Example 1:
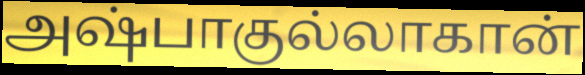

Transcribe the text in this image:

அஷ்பாகுல்லாகான்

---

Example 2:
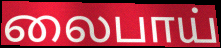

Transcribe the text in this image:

லைபாய்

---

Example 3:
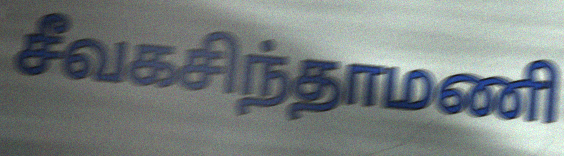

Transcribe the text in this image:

சீவகசிந்தாமணி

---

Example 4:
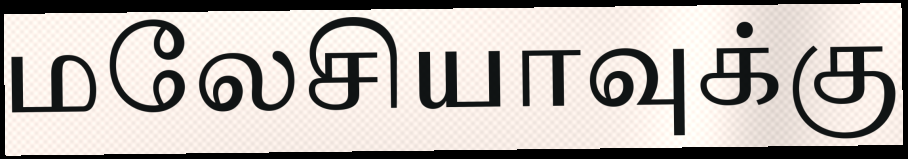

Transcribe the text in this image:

மலேசியாவுக்கு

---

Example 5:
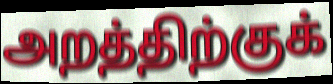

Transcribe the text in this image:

அறத்திற்குக்